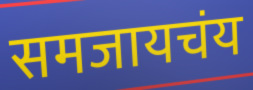
समजायचंय